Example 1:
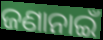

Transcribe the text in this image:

ଜଣାନାଇଁ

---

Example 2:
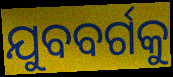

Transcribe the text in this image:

ଯୁବବର୍ଗକୁ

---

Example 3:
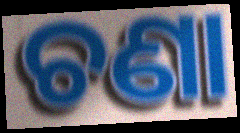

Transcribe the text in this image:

ଚଣା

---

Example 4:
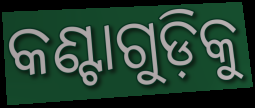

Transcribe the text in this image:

କଣ୍ଟାଗୁଡ଼ିକୁ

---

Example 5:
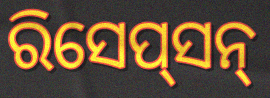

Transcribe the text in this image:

ରିସେପ୍‍ସନ୍